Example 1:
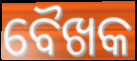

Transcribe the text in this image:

ବୈଖକ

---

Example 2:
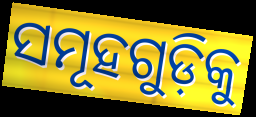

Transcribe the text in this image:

ସମୂହଗୁଡ଼ିକୁ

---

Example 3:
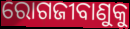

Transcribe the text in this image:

ରୋଗଜୀବାଣୁକୁ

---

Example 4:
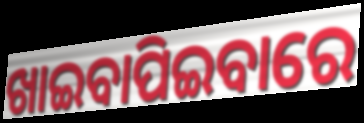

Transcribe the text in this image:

ଖାଇବାପିଇବାରେ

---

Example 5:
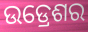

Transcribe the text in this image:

ଉଡ୍ରେଶର